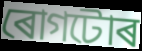
ৰোগটোৰ